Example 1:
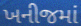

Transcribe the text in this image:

ખનીજમાં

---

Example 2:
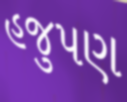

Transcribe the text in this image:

હજુપણ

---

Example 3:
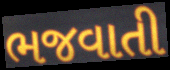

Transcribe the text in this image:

ભજવાતી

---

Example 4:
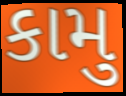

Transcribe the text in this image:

કામુ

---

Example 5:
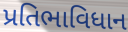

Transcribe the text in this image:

પ્રતિભાવિધાન